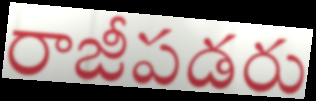
రాజీపడరు